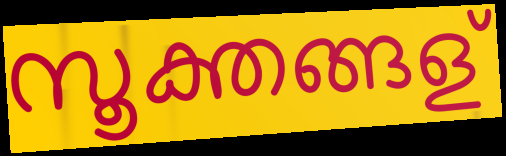
സൂക്തങ്ങള്